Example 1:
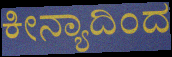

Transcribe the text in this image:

ಕೀನ್ಯಾದಿಂದ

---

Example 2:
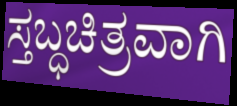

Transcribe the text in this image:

ಸ್ತಬ್ಧಚಿತ್ರವಾಗಿ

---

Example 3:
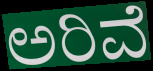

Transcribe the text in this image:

ಅರಿವೆ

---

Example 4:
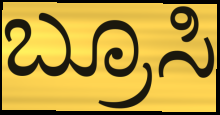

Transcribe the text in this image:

ಬ್ರೂಸಿ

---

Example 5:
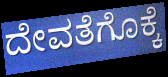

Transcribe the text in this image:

ದೇವತೆಗೊಕ್ಕೆ